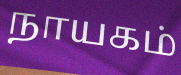
நாயகம்